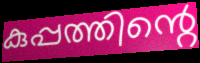
കുപ്പത്തിന്റെ